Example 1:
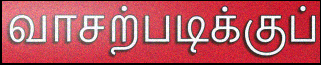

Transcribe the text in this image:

வாசற்படிக்குப்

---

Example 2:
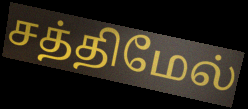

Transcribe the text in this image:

சத்திமேல்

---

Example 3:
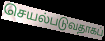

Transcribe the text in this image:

செயல்படுவதாகப்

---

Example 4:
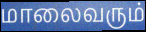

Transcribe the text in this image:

மாலைவரும்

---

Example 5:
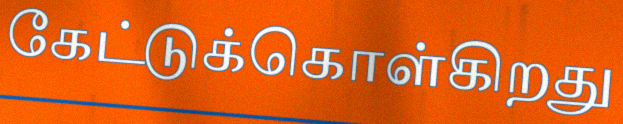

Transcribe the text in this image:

கேட்டுக்கொள்கிறது